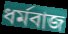
ধর্মবাজ